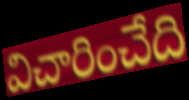
విచారించేది